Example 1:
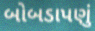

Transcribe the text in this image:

બોબડાપણું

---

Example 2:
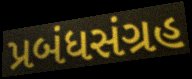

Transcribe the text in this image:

પ્રબંધસંગ્રહ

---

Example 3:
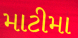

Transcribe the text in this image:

માટીમા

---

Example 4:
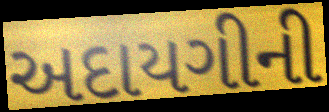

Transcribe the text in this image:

અદાયગીની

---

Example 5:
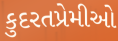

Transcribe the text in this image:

કુદરતપ્રેમીઓ